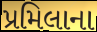
પ્રમિલાના